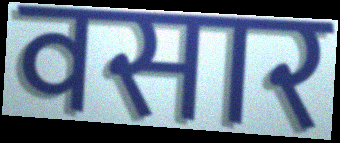
वसार